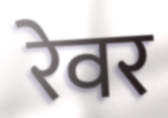
रेवर